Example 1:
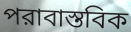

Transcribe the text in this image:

পরাবাস্তবিক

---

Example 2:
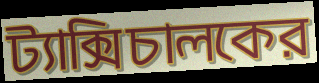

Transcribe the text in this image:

ট্যাক্সিচালকের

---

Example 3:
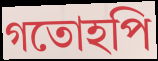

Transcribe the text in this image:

গতোহপি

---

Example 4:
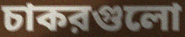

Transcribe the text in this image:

চাকরগুলো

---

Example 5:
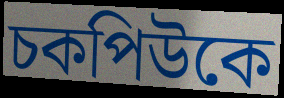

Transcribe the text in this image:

চকপিউকে